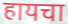
हायचा